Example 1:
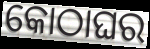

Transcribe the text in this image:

କୋଠାଘର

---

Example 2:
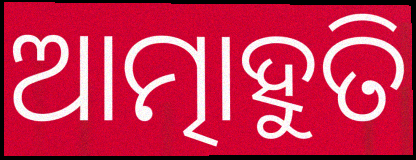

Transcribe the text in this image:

ଆତ୍ମାହୁତି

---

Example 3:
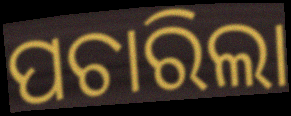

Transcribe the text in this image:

ପଚାରିଲା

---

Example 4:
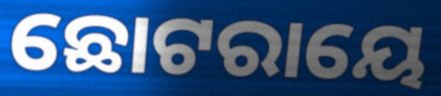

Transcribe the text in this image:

ଛୋଟରାୟେ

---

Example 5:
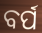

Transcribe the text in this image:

ବର୍ପ